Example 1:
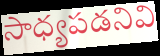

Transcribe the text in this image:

సాధ్యపడనివి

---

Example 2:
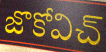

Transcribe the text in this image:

జొకోవిచ్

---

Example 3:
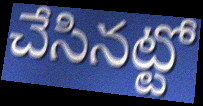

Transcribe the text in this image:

చేసినట్టో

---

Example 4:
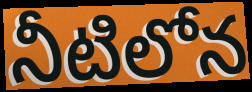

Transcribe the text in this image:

నీటిలోన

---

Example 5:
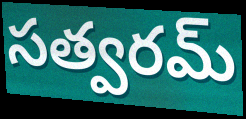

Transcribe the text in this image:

సత్వరమ్